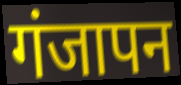
गंजापन